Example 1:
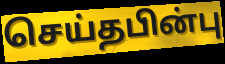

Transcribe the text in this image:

செய்தபின்பு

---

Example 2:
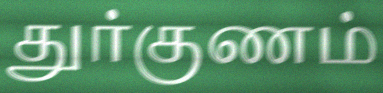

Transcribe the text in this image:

துர்குணம்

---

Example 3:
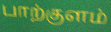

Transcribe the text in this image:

பாற்குளம்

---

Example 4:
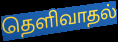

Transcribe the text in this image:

தெளிவாதல்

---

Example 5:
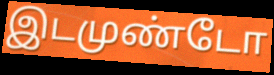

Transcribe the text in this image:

இடமுண்டோ